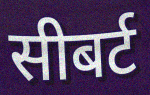
सीबर्ट